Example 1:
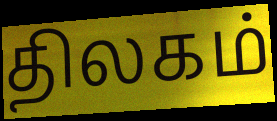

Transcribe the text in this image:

திலகம்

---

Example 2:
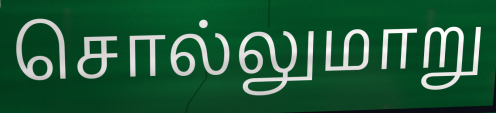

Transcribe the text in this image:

சொல்லுமாறு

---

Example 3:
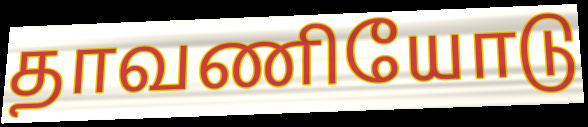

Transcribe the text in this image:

தாவணியோடு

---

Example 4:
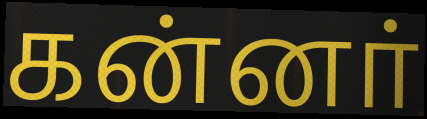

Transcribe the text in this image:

கன்னர்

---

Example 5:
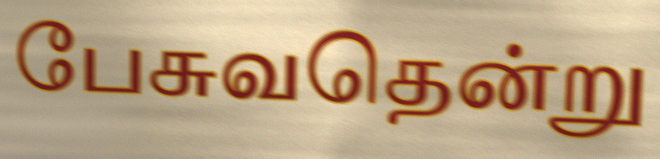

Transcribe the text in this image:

பேசுவதென்று